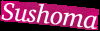
Sushoma